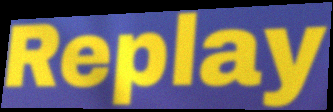
Replay